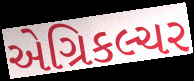
એગ્રિકલ્ચર